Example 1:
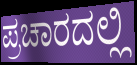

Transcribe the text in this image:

ಪ್ರಚಾರದಲ್ಲಿ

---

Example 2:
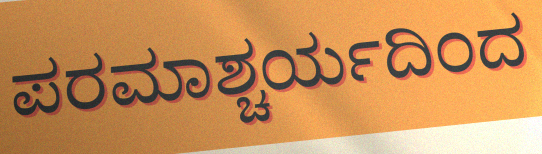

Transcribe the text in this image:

ಪರಮಾಶ್ಚರ್ಯದಿಂದ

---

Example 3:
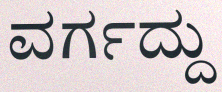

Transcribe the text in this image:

ವರ್ಗದ್ದು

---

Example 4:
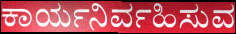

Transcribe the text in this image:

ಕಾರ್ಯನಿರ್ವಹಿಸುವ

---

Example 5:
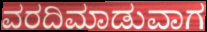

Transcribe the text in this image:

ವರದಿಮಾಡುವಾಗ